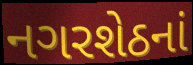
નગરશેઠનાં